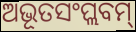
ଅଭୂତସଂପ୍ଲବମ୍